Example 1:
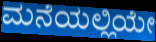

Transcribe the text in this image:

ಮನೆಯಲ್ಲಿಯೇ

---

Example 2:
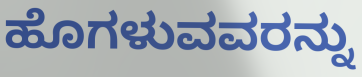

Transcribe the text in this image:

ಹೊಗಳುವವರನ್ನು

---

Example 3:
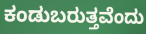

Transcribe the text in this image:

ಕಂಡುಬರುತ್ತವೆಂದು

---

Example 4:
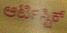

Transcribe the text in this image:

ಆರ್ಟಿಸ್ಟಿಕ್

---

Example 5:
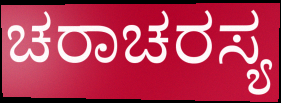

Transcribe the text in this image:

ಚರಾಚರಸ್ಯ